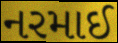
નરમાઈ